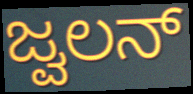
ಜ್ವಲನ್